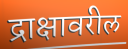
द्राक्षावरील